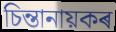
চিন্তানায়কৰ